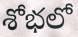
శోభలో